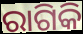
ରାଗିକି